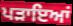
ਪੜਾਇਆਂ